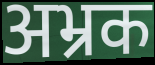
अभ्रक